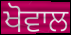
ਖੋਵਾਲ